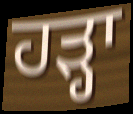
ਹੜ੍ਹਾ